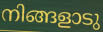
നിങ്ങളാടു